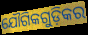
ଯୌଗିକଗୁଡ଼ିକର